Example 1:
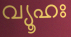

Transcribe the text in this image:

വ്യൂഹഃ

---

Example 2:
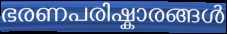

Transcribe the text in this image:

ഭരണപരിഷ്കാരങ്ങൾ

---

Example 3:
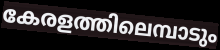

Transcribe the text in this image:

കേരളത്തിലെമ്പാടും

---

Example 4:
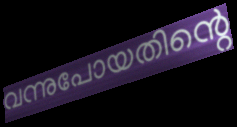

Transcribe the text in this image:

വന്നുപോയതിന്റെ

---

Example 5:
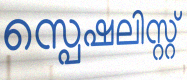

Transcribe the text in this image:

സ്പെഷലിസ്റ്റ്